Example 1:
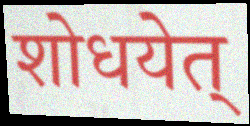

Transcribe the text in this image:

शोधयेत्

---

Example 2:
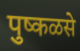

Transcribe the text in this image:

पुष्कळसे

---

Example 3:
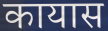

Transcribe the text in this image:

कायास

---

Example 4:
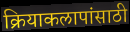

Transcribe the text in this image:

क्रियाकलापांसाठी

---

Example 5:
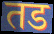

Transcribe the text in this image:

तड